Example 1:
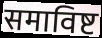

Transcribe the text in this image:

समाविष्ट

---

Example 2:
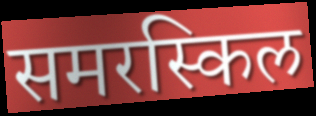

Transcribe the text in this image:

समरस्किल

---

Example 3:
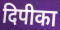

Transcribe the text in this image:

दिपीका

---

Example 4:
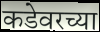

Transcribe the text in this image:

कडेवरच्या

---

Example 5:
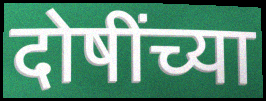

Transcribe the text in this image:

दोषींच्या